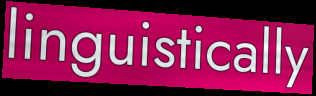
linguistically